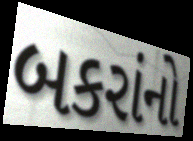
બકરાંનો